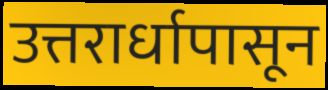
उत्तरार्धापासून